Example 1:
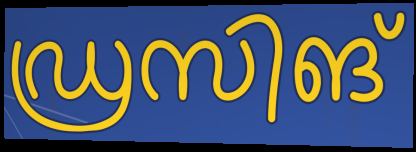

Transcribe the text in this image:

ഡ്രസിങ്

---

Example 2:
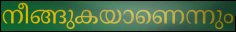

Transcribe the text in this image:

നീങ്ങുകയാണെന്നും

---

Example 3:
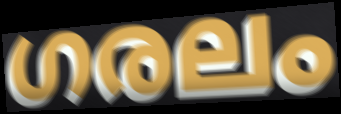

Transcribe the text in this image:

ഗരലം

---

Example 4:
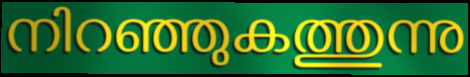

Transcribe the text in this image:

നിറഞ്ഞുകത്തുന്നു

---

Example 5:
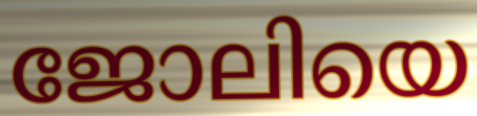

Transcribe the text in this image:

ജോലിയെ